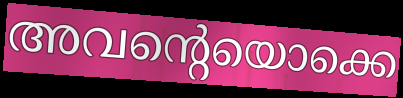
അവന്റെയൊക്കെ